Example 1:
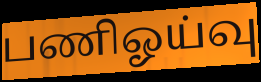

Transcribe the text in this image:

பணிஓய்வு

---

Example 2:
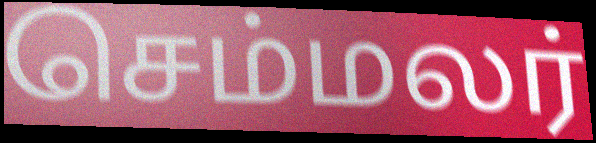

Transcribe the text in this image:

செம்மலர்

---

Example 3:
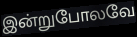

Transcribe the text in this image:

இன்றுபோலவே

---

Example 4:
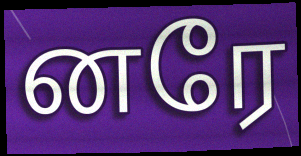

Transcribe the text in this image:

னரே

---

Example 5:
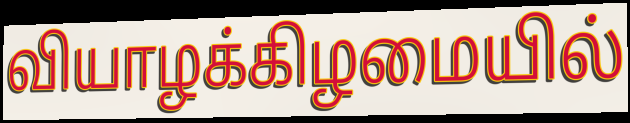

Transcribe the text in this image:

வியாழக்கிழமையில்